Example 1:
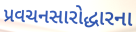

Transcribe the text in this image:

પ્રવચનસારોદ્ધારના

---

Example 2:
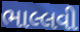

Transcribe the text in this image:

ભાલ્લવી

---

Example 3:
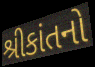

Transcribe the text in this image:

શ્રીકાંતનો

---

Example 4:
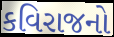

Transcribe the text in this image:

કવિરાજનો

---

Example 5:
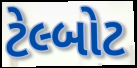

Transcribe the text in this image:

ટેલ્બોટ